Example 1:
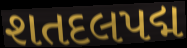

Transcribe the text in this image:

શતદલપદ્મ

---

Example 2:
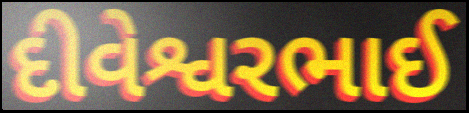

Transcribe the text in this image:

દીવેશ્વરભાઈ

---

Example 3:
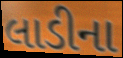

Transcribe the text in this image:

લાડીના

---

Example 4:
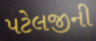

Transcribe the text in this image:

પટેલજીની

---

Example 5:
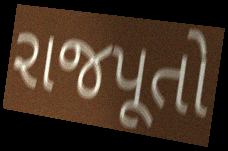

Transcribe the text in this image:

રાજપૂતો